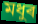
মধুৰ